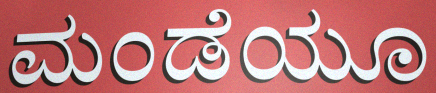
ಮಂಡೆಯೂ